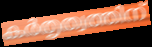
കർതൃത്വത്തിന്